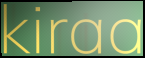
kiraa